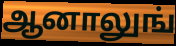
ஆனாலுங்